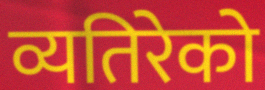
व्यतिरेको